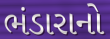
ભંડારાનો